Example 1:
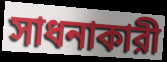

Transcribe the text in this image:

সাধনাকারী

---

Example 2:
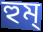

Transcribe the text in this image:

হুম্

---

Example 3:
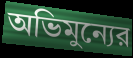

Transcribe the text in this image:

অভিমুন্যের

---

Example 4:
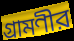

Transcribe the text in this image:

গ্রামণীর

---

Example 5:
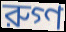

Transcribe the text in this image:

রুগ্ণ